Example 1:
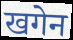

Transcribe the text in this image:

खगेन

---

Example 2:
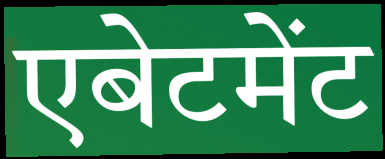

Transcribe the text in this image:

एबेटमेंट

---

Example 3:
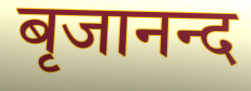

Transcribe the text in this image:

बृजानन्द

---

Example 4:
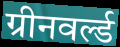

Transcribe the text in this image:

ग्रीनवर्ल्ड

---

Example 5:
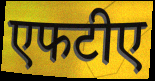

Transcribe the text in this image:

एफटीए